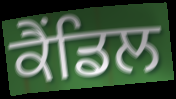
ਕੈਂਡਿਲ